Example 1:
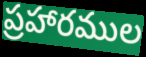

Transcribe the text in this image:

ప్రహారముల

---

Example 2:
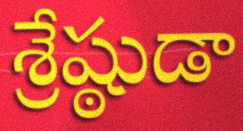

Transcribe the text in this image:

శ్రేష్ఠుడా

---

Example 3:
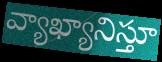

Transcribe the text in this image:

వ్యాఖ్యానిస్తూ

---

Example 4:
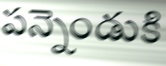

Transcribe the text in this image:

పన్నెండుకి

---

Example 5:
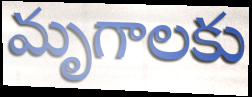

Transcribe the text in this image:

మృగాలకు